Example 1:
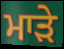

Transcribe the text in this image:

ਮਾੜੇ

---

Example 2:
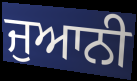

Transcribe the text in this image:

ਜੁਆਨੀ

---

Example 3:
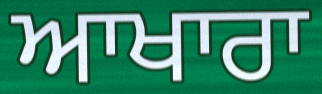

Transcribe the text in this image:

ਆਖਾਰਾ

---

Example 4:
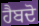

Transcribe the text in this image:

ਹੈਬਦੋ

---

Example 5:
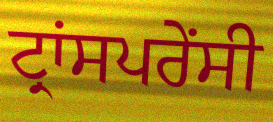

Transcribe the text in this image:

ਟ੍ਰਾਂਸਪਰੇਂਸੀ